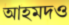
আহমদও